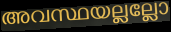
അവസ്ഥയല്ലല്ലോ